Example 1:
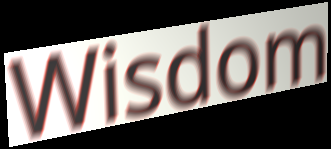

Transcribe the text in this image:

Wisdom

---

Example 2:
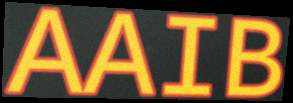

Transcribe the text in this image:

AAIB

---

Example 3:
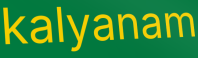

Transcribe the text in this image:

kalyanam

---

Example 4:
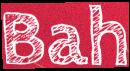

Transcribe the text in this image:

Bah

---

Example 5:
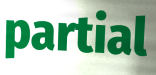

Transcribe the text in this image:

partial